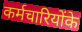
कर्मचारियोंके